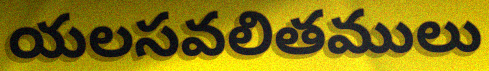
యలసవలితములు